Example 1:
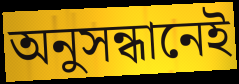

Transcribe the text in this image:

অনুসন্ধানেই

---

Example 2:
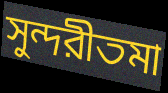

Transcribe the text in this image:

সুন্দরীতমা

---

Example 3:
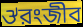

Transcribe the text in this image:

ঔরংজীব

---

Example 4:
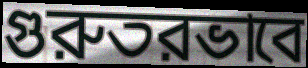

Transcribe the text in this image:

গুরুতরভাবে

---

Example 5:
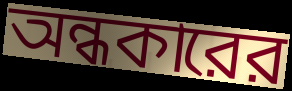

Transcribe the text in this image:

অন্ধকারের